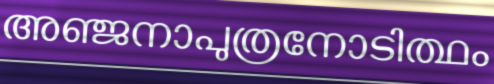
അഞ്ജനാപുത്രനോടിത്ഥം